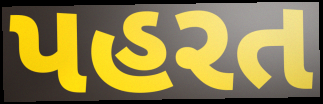
પહરત